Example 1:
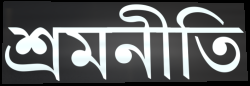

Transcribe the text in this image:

শ্রমনীতি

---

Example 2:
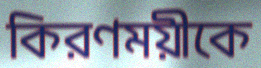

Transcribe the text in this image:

কিরণময়ীকে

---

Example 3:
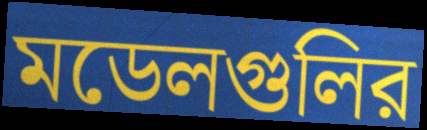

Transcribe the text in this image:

মডেলগুলির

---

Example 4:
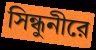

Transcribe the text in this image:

সিন্ধুনীরে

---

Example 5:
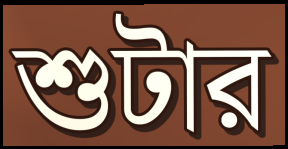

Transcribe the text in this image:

শুটার